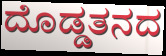
ದೊಡ್ಡತನದ